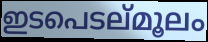
ഇടപെടല്മൂലം